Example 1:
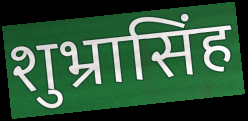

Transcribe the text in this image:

शुभ्रासिंह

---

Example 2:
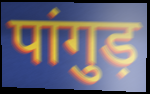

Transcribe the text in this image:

पांगुड़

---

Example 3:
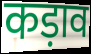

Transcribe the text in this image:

कड़ाव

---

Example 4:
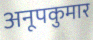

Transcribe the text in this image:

अनूपकुमार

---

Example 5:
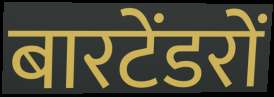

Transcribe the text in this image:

बारटेंडरों